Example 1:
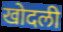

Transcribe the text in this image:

खोदली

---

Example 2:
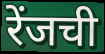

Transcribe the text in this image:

रेंजची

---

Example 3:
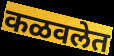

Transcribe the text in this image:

कळवलेत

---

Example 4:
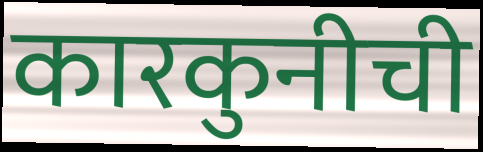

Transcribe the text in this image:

कारकुनीची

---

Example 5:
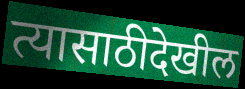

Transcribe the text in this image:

त्यासाठीदेखील